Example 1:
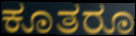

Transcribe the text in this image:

ಕೂತರೂ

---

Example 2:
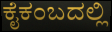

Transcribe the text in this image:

ಕೈಕಂಬದಲ್ಲಿ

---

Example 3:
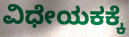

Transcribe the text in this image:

ವಿಧೇಯಕಕ್ಕೆ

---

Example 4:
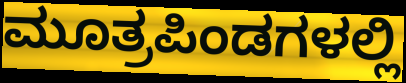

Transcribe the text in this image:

ಮೂತ್ರಪಿಂಡಗಳಲ್ಲಿ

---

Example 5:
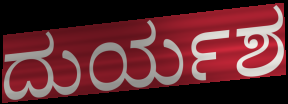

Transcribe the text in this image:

ದುರ್ಯಶ